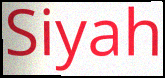
Siyah